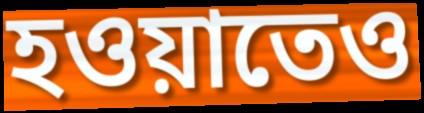
হওয়াতেও